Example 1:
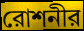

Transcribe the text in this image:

রোশনীর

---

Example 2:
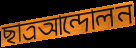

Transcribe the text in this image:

ছাত্রআন্দোলন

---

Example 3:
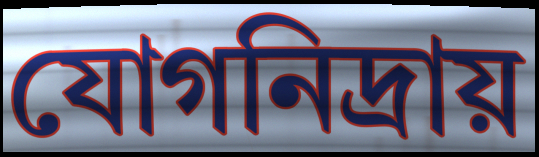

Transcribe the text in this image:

যোগনিদ্রায়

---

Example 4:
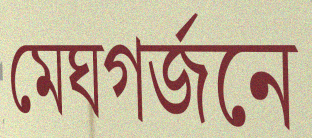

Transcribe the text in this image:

মেঘগর্জনে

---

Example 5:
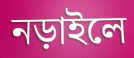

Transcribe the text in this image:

নড়াইলে